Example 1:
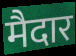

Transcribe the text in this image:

मैदार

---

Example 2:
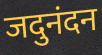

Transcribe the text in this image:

जदुनंदन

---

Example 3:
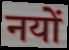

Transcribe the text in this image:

नयों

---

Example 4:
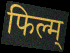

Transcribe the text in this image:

फिल्म्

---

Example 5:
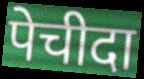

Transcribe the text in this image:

पेचीदा